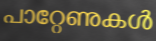
പാറ്റേണുകൾ